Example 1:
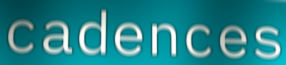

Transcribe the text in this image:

cadences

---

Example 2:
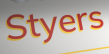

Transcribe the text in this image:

Styers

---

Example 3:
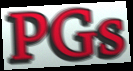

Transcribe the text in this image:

PGs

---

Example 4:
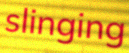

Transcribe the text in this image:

slinging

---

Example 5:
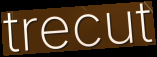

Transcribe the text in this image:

trecut